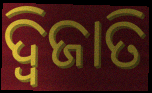
ଦ୍ୱିଜାତି